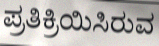
ಪ್ರತಿಕ್ರಿಯಿಸಿರುವ